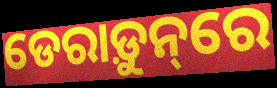
ଡେରାଡ଼ୁନ୍‌ରେ